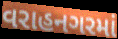
વરાહનગરમાં